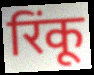
रिंकू